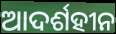
ଆଦର୍ଶହୀନ